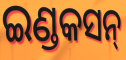
ଇଣ୍ଡକସନ୍